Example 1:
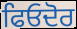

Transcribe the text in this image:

ਫਿਓਦੋਰ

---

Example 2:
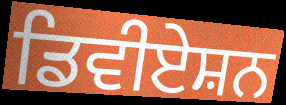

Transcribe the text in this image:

ਡਿਵੀਏਸ਼ਨ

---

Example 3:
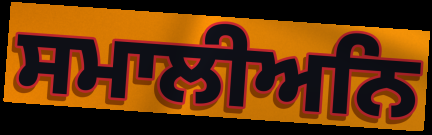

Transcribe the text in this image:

ਸਮਾਲੀਅਨਿ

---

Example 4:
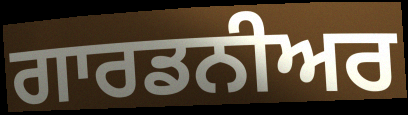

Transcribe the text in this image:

ਗਾਰਡਨੀਅਰ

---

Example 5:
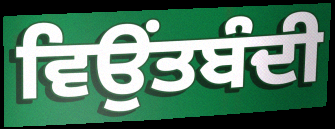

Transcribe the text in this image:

ਵਿਉਂਤਬੰਦੀ